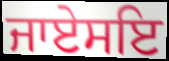
ਜਾਏਸਇ